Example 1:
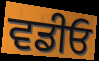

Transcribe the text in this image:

ਵਡੀਓ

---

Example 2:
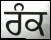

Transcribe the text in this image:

ਰੰਕ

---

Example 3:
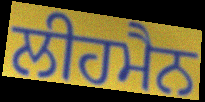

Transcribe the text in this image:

ਲੀਹਮੈਨ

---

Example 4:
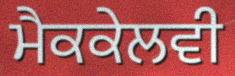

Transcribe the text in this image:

ਮੈਕਕੇਲਵੀ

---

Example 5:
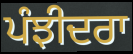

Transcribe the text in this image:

ਪੰਝੀਦਰਾ